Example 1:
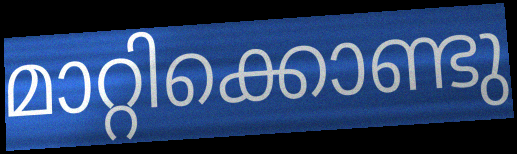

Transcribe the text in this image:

മാറ്റിക്കൊണ്ടു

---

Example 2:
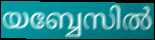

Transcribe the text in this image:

യബ്ബേസിൽ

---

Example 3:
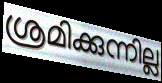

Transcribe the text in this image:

ശ്രമിക്കുന്നില്ല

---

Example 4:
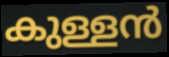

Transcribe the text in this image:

കുള്ളൻ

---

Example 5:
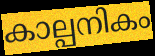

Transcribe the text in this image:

കാല്പനികം